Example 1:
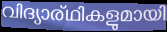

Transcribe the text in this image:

വിദ്യാര്ഥികളുമായി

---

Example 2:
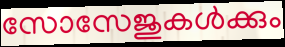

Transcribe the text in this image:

സോസേജുകൾക്കും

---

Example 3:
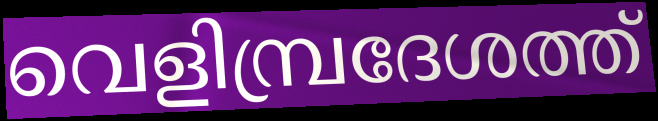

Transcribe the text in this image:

വെളിമ്പ്രദേശത്ത്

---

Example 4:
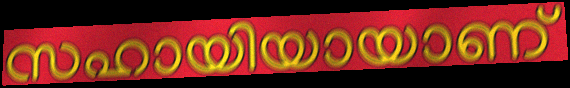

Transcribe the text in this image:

സഹായിയായാണ്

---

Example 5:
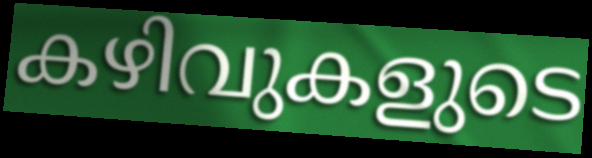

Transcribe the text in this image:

കഴിവുകളുടെ